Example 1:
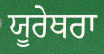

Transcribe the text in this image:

ਯੂਰੇਥਰਾ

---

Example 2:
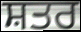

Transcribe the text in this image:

ਸ਼ਤਰ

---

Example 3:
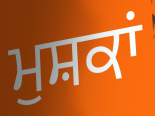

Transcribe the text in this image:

ਮੁਸ਼ਕਾਂ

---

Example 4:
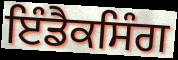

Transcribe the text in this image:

ਇੰਡੈਕਸਿੰਗ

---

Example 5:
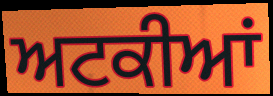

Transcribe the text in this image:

ਅਟਕੀਆਂ